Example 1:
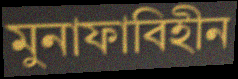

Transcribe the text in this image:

মুনাফাবিহীন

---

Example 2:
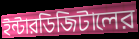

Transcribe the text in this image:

ইন্টারডিজিটালের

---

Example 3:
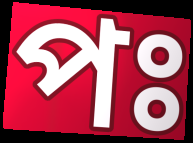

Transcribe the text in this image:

পঃ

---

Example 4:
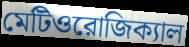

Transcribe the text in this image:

মেটিওরোজিক্যাল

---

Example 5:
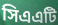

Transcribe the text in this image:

সিএএটি